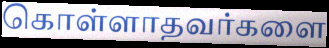
கொள்ளாதவர்களை